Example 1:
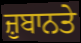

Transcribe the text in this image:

ਜ਼ੁਬਾਨਤੇ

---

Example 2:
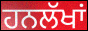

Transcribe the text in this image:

ਹਨਲੱਖਾਂ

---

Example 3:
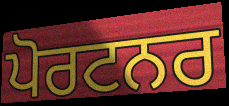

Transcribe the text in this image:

ਪੋਰਟਨਰ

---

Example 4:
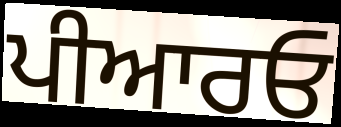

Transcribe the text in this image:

ਪੀਆਰਓ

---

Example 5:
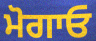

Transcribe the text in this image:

ਮੋਗਾਓ